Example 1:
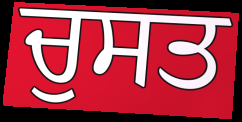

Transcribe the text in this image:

ਚੁਸਤ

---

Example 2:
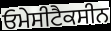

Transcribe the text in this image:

ਓਮੇਸੀਟੈਕਸੀਨ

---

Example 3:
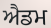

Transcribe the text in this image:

ਐਡਮ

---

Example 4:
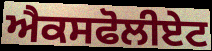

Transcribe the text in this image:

ਐਕਸਫੋਲੀਏਟ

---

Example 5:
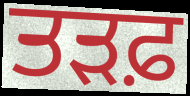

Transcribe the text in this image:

ਤੜਫ਼